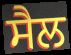
ਸੈਲ